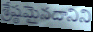
శ్రేష్ఠమైనదానిని